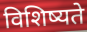
विशिष्यते